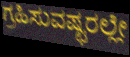
ಗ್ರಹಿಸುವಷ್ಟರಲ್ಲೇ